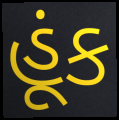
હૂંક